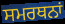
ਸਮਰਥਨਾਂ